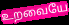
உறவையே